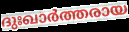
ദുഃഖാർത്തരായ